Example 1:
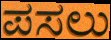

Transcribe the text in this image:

ಪಸಲು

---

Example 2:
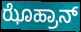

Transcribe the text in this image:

ಝೊಹ್ರಾನ್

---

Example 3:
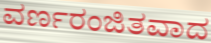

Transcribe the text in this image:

ವರ್ಣರಂಜಿತವಾದ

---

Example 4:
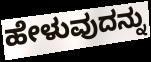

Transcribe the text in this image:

ಹೇಳುವುದನ್ನು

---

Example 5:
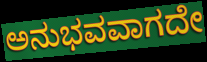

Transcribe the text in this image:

ಅನುಭವವಾಗದೇ